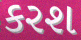
કરશ